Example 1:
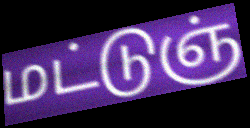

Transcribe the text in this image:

மட்டுஞ்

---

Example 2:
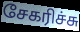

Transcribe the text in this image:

சேகரிச்சு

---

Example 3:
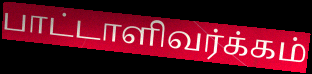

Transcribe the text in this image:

பாட்டாளிவர்க்கம்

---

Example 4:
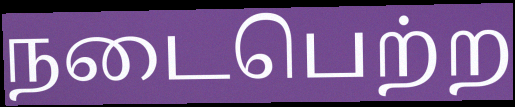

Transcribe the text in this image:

நடைபெற்ற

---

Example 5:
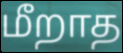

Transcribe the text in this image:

மீறாத